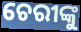
ଚେରୀଙ୍କୁ